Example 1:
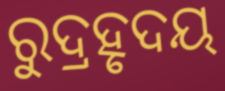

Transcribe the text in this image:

ରୁଦ୍ରହୃଦୟ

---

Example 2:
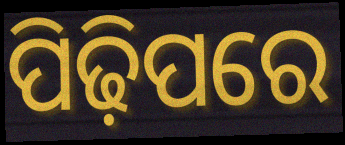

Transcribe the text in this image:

ପିଢ଼ିପରେ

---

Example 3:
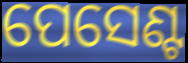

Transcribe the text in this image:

ପେସେଣ୍ଟ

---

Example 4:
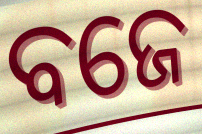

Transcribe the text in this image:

ବଜେ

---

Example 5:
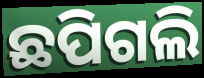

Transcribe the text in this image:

ଛପିଗଲି